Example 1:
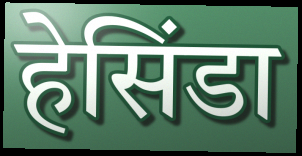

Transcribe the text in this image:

हेसिंडा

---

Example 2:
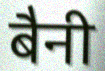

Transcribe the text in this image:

बैनी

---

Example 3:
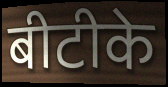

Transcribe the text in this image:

बीटीके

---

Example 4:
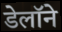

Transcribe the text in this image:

डेलॉने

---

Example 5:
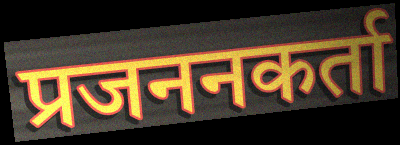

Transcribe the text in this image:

प्रजननकर्ता